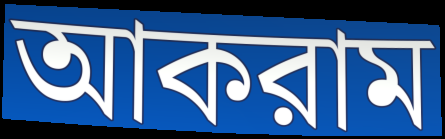
আকরাম